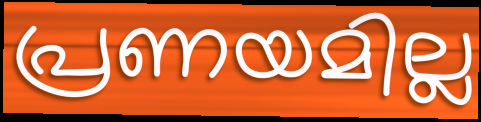
പ്രണയമില്ല